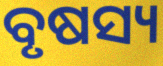
ବୃଷସ୍ୟ